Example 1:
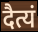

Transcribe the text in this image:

दैत्यं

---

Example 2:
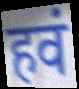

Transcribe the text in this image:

हवं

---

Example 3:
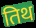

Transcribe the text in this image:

तिथ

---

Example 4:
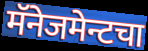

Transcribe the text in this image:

मॅनेजमेन्टचा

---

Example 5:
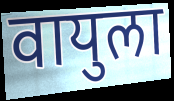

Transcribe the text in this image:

वायुला